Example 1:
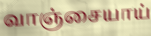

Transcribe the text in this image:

வாஞ்சையாய்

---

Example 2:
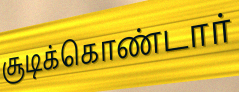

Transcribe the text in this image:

சூடிக்கொண்டார்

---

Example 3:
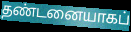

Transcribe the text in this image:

தண்டனையாகப்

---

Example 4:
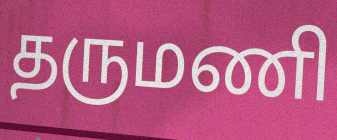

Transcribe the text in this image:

தருமணி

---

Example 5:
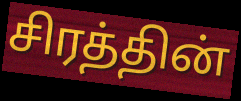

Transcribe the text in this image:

சிரத்தின்